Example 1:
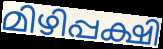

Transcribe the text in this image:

മിഴിപ്പക്ഷി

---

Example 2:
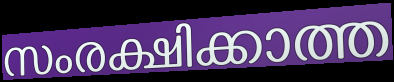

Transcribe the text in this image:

സംരക്ഷിക്കാത്ത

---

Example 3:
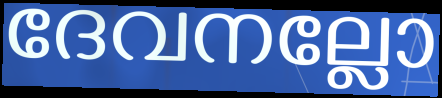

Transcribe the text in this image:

ദേവനല്ലോ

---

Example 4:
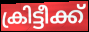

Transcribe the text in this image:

ക്രിട്ടീക്ക്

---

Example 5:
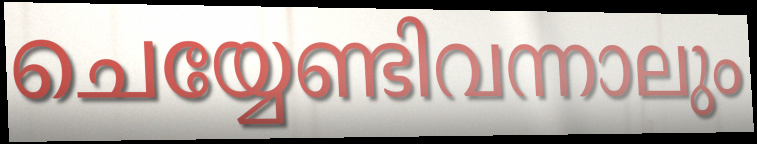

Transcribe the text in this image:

ചെയ്യേണ്ടിവന്നാലും